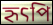
হৃৎপি